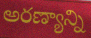
అరణ్యాన్ని